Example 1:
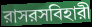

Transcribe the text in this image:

রাসরসবিহারী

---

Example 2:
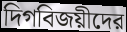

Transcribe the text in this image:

দিগবিজয়ীদের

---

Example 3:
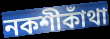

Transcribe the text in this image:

নকশীকাঁথা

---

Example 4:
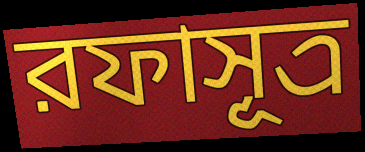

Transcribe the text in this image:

রফাসূত্র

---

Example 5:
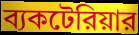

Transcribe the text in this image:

ব্যকটেরিয়ার